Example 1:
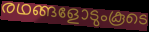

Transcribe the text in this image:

രഥങ്ങളോടുംകൂടെ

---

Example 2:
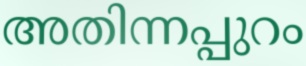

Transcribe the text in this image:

അതിന്നപ്പുറം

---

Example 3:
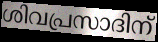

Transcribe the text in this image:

ശിവപ്രസാദിന്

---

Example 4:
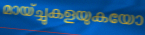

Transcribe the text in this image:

മായ്ച്ചുകളയുകയോ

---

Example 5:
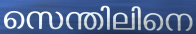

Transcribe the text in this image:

സെന്തിലിനെ